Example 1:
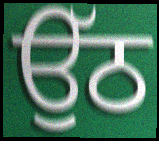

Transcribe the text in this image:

ਉੱਠ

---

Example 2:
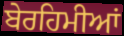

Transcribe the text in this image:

ਬੇਰਹਿਮੀਆਂ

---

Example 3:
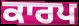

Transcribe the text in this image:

ਕਾਰਪ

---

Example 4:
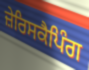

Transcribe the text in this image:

ਜ਼ੇਰਿਸਕੈਪਿੰਗ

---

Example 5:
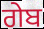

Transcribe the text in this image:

ਗੇਬ